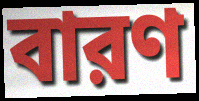
বারণ